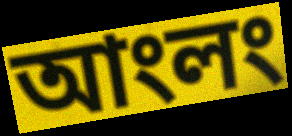
আংলং